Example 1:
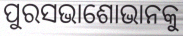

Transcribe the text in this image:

ପୁରସଭାଶୋଭାନକୁ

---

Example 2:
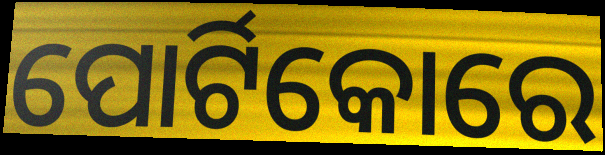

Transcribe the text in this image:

ପୋର୍ଟିକୋରେ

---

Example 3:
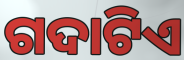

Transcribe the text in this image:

ଗଦାଟିଏ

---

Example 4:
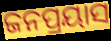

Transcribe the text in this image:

ଜନପ୍ରୟାସ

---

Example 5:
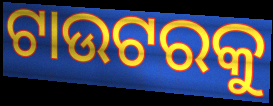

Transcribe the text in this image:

ଟାଉଟରକୁ